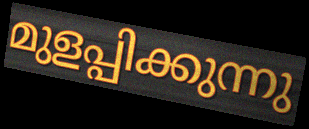
മുളപ്പിക്കുന്നു